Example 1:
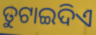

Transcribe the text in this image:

ତୁଟାଇଦିଏ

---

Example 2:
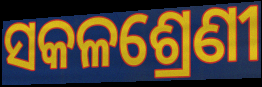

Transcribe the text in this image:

ସକଳଶ୍ରେଣୀ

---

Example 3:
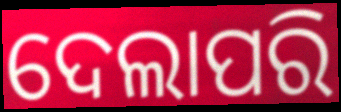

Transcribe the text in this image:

ଦେଲାପରି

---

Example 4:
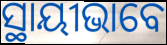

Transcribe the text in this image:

ସ୍ଥାୟୀଭାବେ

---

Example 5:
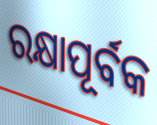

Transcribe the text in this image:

ରକ୍ଷାପୂର୍ବକ